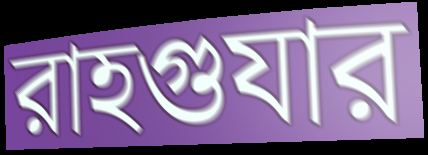
রাহগুযার